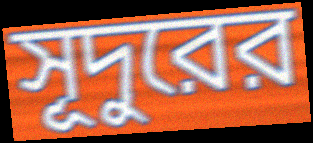
সূদুরের